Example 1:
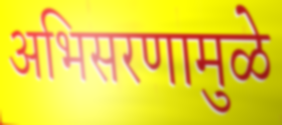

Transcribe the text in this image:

अभिसरणामुळे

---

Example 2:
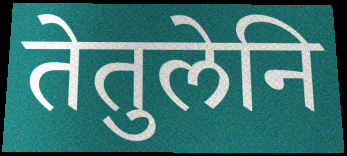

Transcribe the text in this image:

तेतुलेनि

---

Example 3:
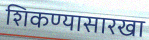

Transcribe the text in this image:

शिकण्यासारखा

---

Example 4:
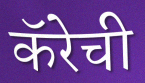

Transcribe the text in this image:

कॅरेची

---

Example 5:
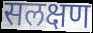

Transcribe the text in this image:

सलक्षण